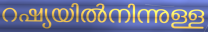
റഷ്യയിൽനിന്നുള്ള